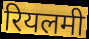
रियलमी